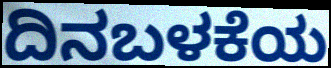
ದಿನಬಳಕೆಯ